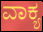
ವಾಕ್ಯ